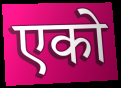
एको